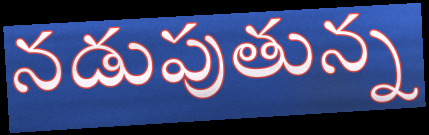
నడుపుతున్న